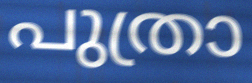
പുത്രാ